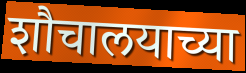
शौचालयाच्या